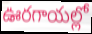
ఊరగాయల్లో